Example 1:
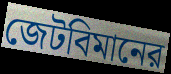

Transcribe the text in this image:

জেটবিমানের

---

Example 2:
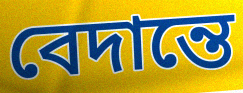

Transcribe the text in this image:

বেদান্তে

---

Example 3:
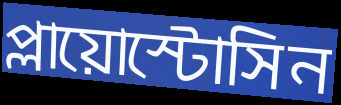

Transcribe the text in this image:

প্লায়োস্টোসিন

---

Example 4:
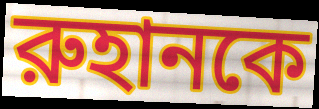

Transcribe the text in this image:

রুহানকে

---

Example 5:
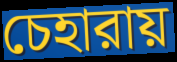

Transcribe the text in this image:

চেহারায়